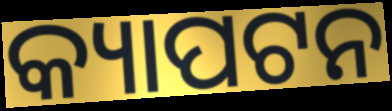
କ୍ୟାପଟନ